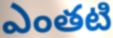
ఎంతటి